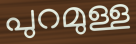
പുറമുള്ള